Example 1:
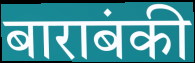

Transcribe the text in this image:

बाराबंकी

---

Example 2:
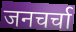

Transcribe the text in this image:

जनचर्चा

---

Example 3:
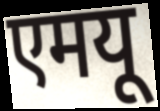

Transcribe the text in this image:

एमयू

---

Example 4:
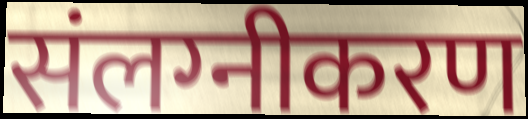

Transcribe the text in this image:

संलग्‍नीकरण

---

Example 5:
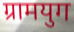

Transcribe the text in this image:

ग्रामयुग